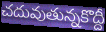
చదువుతున్నకొద్దీ